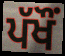
ਪੱਖੌਂ